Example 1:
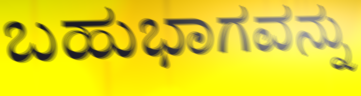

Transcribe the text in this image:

ಬಹುಭಾಗವನ್ನು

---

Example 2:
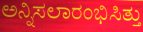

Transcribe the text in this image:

ಅನ್ನಿಸಲಾರಂಭಿಸಿತ್ತು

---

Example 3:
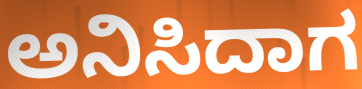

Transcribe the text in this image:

ಅನಿಸಿದಾಗ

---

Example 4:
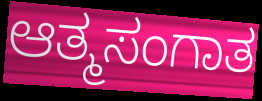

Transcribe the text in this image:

ಆತ್ಮಸಂಗಾತ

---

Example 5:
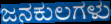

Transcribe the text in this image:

ಜನಕುಲಗಳು